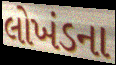
લોખંડના